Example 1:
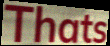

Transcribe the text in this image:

Thats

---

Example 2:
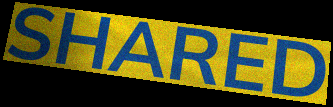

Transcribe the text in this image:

SHARED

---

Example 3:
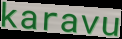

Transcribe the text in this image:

karavu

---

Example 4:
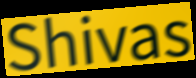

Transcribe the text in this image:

Shivas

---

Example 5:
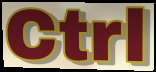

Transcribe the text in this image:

Ctrl